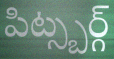
పిట్స్బర్గ్